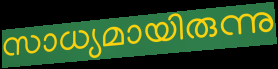
സാധ്യമായിരുന്നു